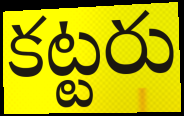
కట్టరు